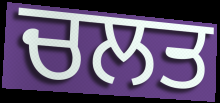
ਚਲਤ